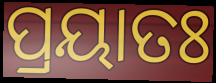
ପ୍ରୟାତଃ